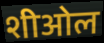
शीओल